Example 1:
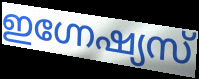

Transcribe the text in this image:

ഇഗ്നേഷ്യസ്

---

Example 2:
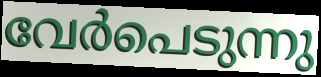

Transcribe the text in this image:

വേർപെടുന്നു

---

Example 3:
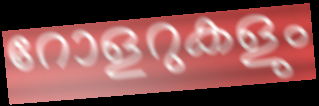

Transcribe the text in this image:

റോളറുകളും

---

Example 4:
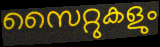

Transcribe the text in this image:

സൈറ്റുകളും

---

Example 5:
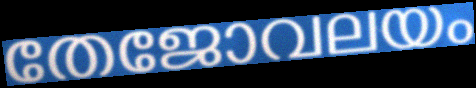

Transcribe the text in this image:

തേജോവലയം